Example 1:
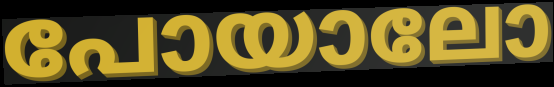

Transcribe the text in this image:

പോയാലോ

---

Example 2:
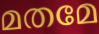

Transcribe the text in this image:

മതമേ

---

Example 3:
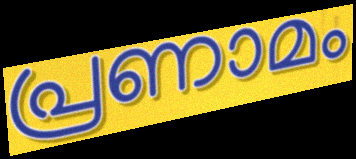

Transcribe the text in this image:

പ്രണാമം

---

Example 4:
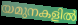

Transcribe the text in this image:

യമുനകളിൽ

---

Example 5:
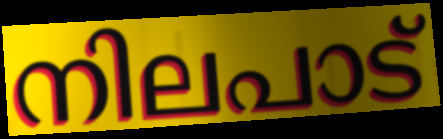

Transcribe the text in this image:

നിലപാട്